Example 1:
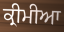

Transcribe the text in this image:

ਕ੍ਰੀਮੀਆ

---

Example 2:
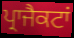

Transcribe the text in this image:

ਪ੍ਰਾਜੈਕਟਾਂ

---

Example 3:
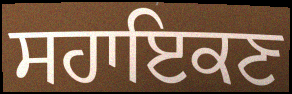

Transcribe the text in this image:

ਸਹਾਇਕਣ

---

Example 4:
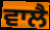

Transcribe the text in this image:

ਵਾਲੈ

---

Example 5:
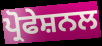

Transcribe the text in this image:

ਪ੍ਰੋਫੇਸ਼ਨਲ